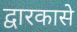
द्वारकासे